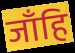
जाँहि